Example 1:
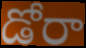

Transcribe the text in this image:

డోరా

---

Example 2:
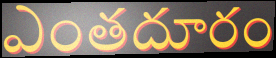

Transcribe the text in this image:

ఎంతదూరం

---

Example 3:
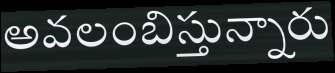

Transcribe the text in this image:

అవలంబిస్తున్నారు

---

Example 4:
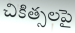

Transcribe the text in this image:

చికిత్సలపై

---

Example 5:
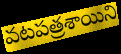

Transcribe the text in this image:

వటపత్రశాయిని